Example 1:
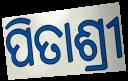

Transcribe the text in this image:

ପିତାଶ୍ରୀ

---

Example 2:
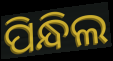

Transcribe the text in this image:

ପିନ୍ଧିଲ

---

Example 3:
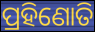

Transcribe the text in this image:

ପ୍ରହିଣୋତି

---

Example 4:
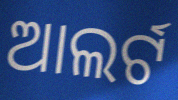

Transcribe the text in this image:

ଆଲର୍ଟ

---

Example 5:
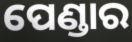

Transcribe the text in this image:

ପେଣ୍ଡାର